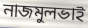
নাজমুলভাই